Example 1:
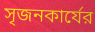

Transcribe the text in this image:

সৃজনকার্যের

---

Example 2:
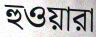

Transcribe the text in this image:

হুওয়ারা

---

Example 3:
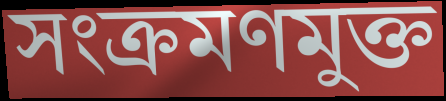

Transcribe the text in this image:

সংক্রমণমুক্ত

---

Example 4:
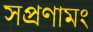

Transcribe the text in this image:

সপ্রণামং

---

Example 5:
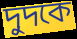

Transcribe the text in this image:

দুদকে